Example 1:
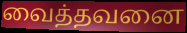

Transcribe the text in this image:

வைத்தவனை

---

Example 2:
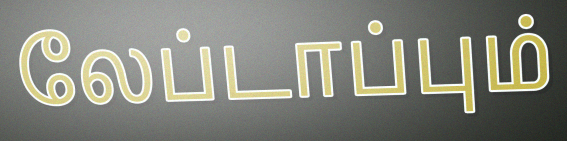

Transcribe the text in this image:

லேப்டாப்பும்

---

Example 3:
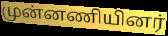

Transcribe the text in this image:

முன்னணியினர்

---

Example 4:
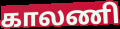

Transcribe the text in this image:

காலணி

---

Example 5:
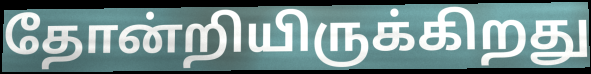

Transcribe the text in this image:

தோன்றியிருக்கிறது